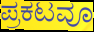
ಪ್ರಕಟವೂ